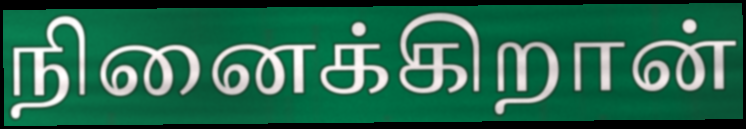
நினைக்கிறான்